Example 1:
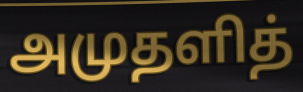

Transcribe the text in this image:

அமுதளித்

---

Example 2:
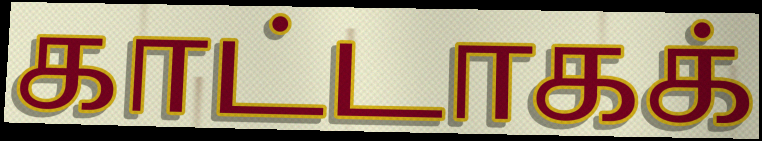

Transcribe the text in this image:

காட்டாகக்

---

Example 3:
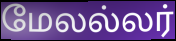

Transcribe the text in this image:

மேலல்லர்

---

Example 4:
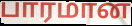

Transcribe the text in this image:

பாரமான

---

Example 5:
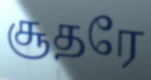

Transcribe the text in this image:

சூதரே